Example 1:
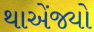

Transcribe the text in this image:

થાએંજ્યો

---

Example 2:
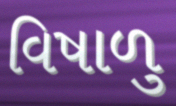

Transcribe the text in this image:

વિષાળુ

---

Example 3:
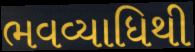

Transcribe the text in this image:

ભવવ્યાધિથી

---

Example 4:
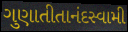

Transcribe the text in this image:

ગુણાતીતાનંદસ્વામી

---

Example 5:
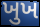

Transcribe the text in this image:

ખુખ